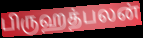
பிருஹத்பலன்